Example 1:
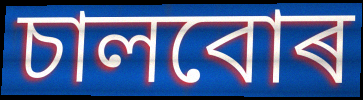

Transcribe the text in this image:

চালবোৰ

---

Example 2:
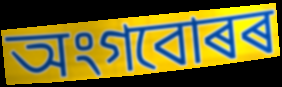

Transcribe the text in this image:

অংগবোৰৰ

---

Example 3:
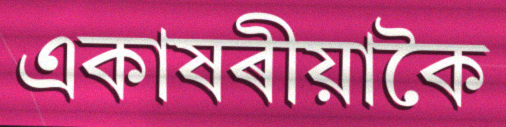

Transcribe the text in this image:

একাষৰীয়াকৈ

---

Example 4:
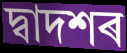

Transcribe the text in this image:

দ্বাদশৰ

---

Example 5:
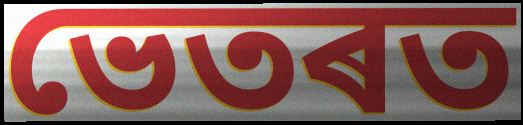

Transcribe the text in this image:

ভেতৰত